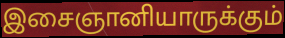
இசைஞானியாருக்கும்